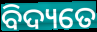
ବିଦ୍ୟତେ